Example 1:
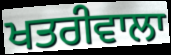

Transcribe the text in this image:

ਖਤਰੀਵਾਲਾ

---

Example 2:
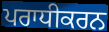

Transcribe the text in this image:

ਪਰਾਧੀਕਰਨ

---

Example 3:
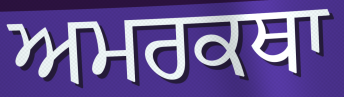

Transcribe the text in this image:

ਅਮਰਕਥਾ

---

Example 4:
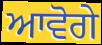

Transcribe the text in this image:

ਆਵੋਗੇ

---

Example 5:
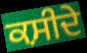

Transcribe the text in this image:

ਕ਼ਸੀਦੇ